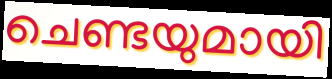
ചെണ്ടയുമായി